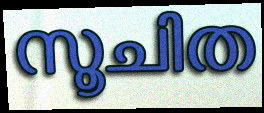
സൂചിത